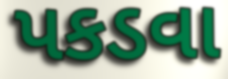
પકડવા